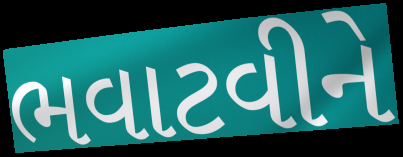
ભવાટવીને